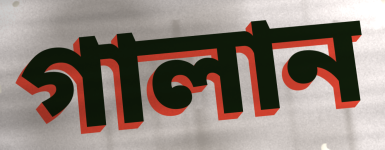
গালান